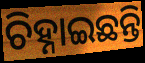
ଚିହ୍ନାଇଛନ୍ତି